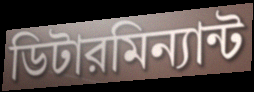
ডিটারমিন্যান্ট